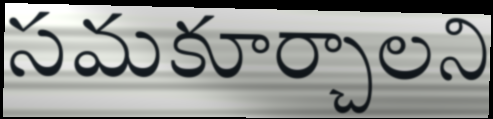
సమకూర్చాలని